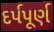
દર્પપૂર્ણ